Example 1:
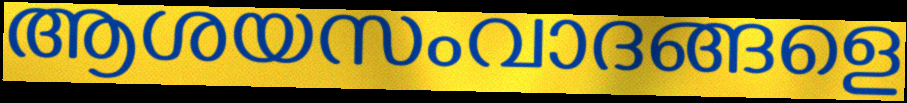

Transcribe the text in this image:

ആശയസംവാദങ്ങളെ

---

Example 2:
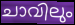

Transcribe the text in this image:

ചാവിലും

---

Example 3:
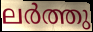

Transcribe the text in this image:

ലർത്തു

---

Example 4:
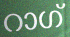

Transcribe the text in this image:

റാഗ്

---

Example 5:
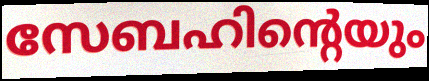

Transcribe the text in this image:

സേബഹിന്റെയും